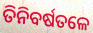
ତିନିବର୍ଷତଳେ